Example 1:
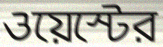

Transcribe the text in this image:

ওয়েস্টের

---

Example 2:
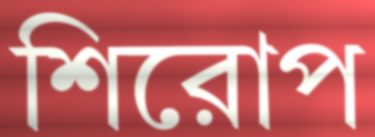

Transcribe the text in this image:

শিরোপ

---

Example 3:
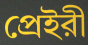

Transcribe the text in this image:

প্রেইরী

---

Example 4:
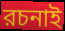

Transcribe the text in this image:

রচনাই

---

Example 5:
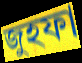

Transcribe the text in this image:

জুহফা